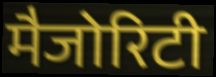
मैजोरिटी